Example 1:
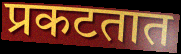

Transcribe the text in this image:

प्रकटतात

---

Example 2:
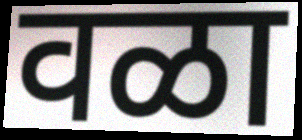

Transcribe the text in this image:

वळा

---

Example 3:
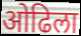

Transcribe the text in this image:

ओढिला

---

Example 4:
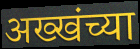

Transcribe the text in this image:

अख्खंच्या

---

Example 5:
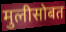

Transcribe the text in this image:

मुलीसोबत